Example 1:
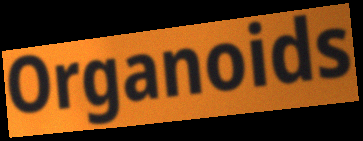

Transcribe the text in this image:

Organoids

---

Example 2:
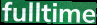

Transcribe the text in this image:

fulltime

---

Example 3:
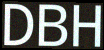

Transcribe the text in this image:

DBH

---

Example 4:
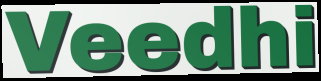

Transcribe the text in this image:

Veedhi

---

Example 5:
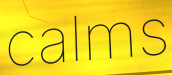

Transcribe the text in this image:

calms